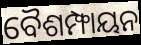
ବୈଶମ୍ଫାୟନ